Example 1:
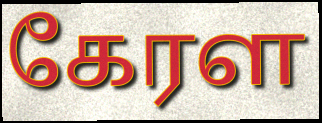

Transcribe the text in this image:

கேரள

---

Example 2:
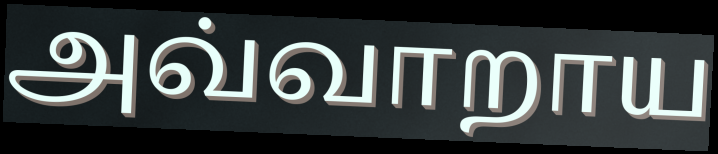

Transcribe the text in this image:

அவ்வாறாய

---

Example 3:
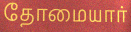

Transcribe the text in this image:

தோமையார்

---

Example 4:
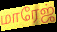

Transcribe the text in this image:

மாரேஜ்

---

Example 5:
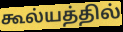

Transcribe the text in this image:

கூல்யத்தில்